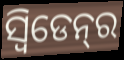
ସ୍ୱିଡେନ୍‍ର